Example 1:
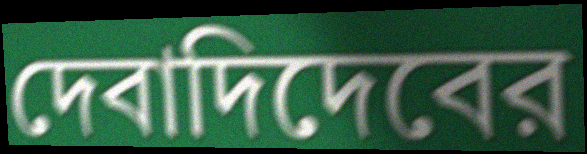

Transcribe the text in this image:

দেবাদিদেবের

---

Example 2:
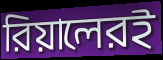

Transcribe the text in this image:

রিয়ালেরই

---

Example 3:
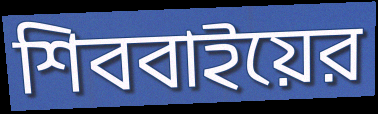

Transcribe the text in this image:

শিববাইয়ের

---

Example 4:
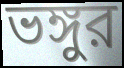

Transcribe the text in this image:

ভঙ্গুর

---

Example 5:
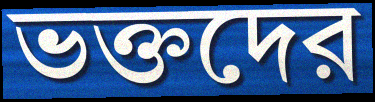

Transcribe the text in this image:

ভক্তদের